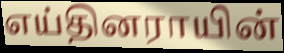
எய்தினராயின்